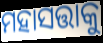
ମହାସତ୍ତାକୁ